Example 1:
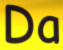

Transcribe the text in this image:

Da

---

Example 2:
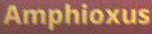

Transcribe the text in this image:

Amphioxus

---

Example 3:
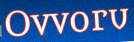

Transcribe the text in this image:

Ovvoru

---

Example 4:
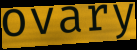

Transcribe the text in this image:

ovary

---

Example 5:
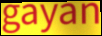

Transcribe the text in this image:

gayan